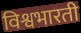
विश्वभारती